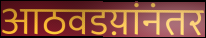
आठवडय़ांनंतर